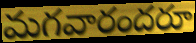
మగవారందరూ